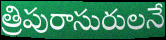
త్రిపురాసురులనే